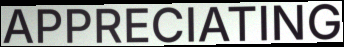
APPRECIATING